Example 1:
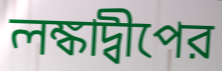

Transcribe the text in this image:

লঙ্কাদ্বীপের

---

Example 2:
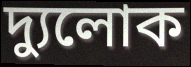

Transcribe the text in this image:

দ্যুলোক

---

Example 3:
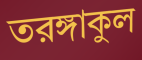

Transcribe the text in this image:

তরঙ্গাকুল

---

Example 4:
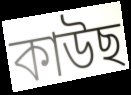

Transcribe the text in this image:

কাউছ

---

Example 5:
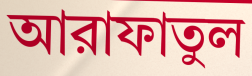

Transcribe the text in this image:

আরাফাতুল